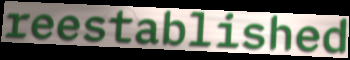
reestablished